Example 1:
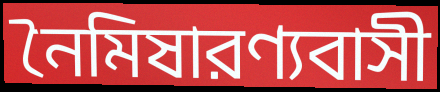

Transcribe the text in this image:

নৈমিষারণ্যবাসী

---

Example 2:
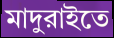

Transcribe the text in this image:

মাদুরাইতে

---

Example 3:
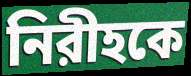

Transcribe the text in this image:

নিরীহকে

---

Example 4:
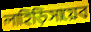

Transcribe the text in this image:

লাহিড়িসায়েব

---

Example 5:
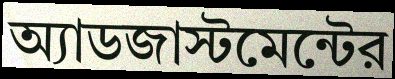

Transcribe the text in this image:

অ্যাডজাস্টমেন্টের